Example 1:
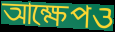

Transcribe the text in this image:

আক্ষেপও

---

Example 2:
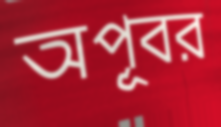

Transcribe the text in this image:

অপূবর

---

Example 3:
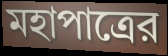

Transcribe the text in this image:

মহাপাত্রের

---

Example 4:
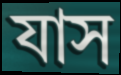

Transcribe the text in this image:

যাস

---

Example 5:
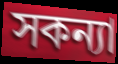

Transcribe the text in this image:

সকন্যা